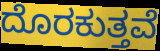
ದೊರಕುತ್ತವೆ